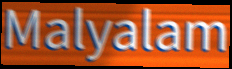
Malyalam